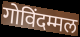
गोविंदम्मल